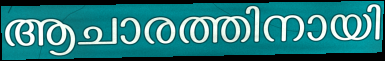
ആചാരത്തിനായി